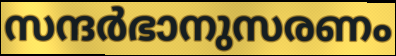
സന്ദർഭാനുസരണം